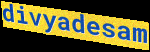
divyadesam